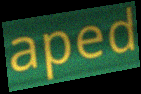
aped